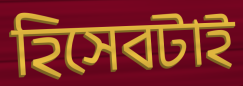
হিসেবটাই